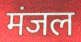
मंजल